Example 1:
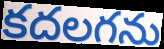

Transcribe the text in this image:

కదలగను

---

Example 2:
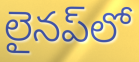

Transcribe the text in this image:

లైనప్‌లో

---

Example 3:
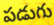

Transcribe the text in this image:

పడుగు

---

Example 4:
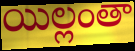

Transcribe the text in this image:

యిల్లంతా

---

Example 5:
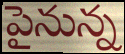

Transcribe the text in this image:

పైనున్న